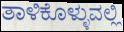
ತಾಳಿಕೊಳ್ಳುವಲ್ಲಿ